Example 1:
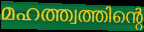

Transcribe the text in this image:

മഹത്ത്വത്തിന്റെ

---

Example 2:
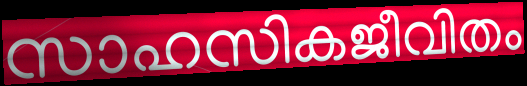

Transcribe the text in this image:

സാഹസികജീവിതം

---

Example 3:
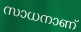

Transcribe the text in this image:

സാധനാണ്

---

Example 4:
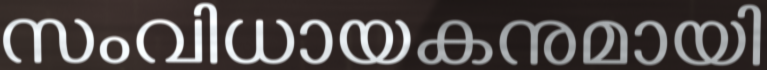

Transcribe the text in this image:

സംവിധായകനുമായി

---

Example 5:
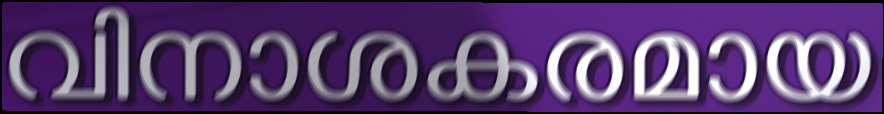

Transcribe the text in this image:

വിനാശകരമായ